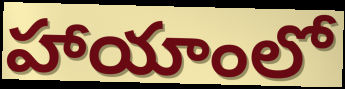
హాయాంలో